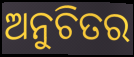
ଅନୁଚିତର